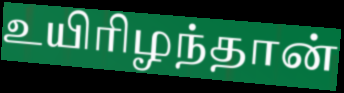
உயிரிழந்தான்